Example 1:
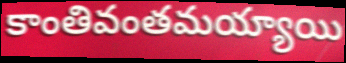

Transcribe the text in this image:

కాంతివంతమయ్యాయి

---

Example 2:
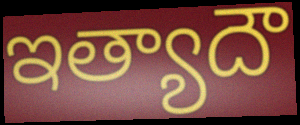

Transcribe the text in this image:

ఇత్యాదౌ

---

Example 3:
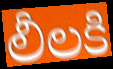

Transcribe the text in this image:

లీలకి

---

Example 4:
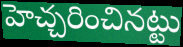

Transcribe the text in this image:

హెచ్చరించినట్టు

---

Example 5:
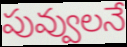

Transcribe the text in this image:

పువ్వులనే